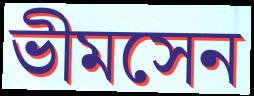
ভীমসেন